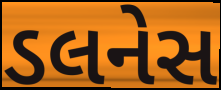
ડલનેસ